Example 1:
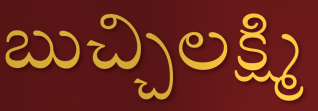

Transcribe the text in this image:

బుచ్చిలక్ష్మి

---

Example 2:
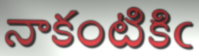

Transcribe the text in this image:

నాకంటికిఁ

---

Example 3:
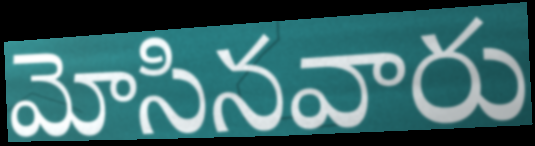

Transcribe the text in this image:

మోసినవారు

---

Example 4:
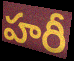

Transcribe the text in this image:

హరీ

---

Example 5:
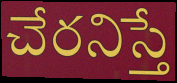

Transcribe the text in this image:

చేరనిస్తే